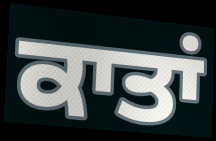
ਕਾਤਾਂ